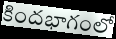
కిందభాగంలో